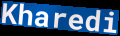
Kharedi